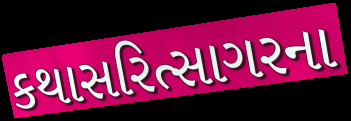
કથાસરિત્સાગરના